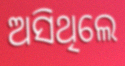
ଅସିଥିଲେ